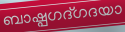
ബാഷ്പഗദ്ഗദയാ